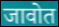
जावोत